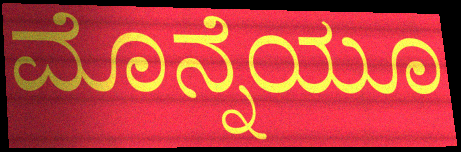
ಮೊನ್ನೆಯೂ